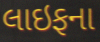
લાઇફના